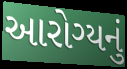
આરોગ્યનું